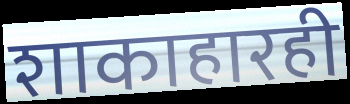
शाकाहारही